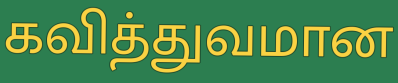
கவித்துவமான